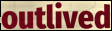
outlived